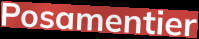
Posamentier